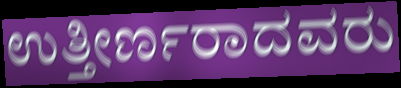
ಉತ್ತೀರ್ಣರಾದವರು